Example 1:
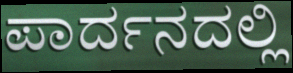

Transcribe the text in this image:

ಪಾರ್ದನದಲ್ಲಿ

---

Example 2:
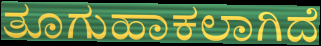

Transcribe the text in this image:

ತೂಗುಹಾಕಲಾಗಿದೆ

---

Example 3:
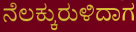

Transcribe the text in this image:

ನೆಲಕ್ಕುರುಳಿದಾಗ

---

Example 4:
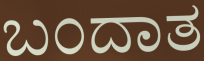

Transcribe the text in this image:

ಬಂದಾತ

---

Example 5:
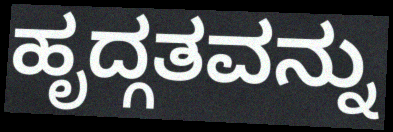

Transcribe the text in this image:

ಹೃದ್ಗತವನ್ನು